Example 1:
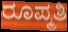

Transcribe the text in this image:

ರೂಪ್ಮತಿ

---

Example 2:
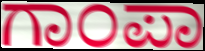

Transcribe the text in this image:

ಗಾಂಪಾ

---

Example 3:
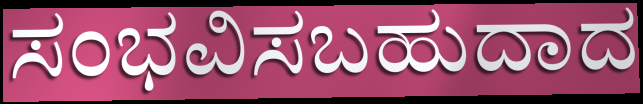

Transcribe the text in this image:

ಸಂಭವಿಸಬಹುದಾದ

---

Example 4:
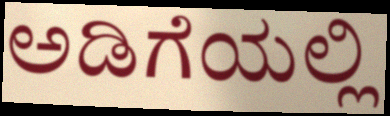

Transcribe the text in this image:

ಅಡಿಗೆಯಲ್ಲಿ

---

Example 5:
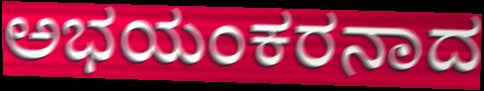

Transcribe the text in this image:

ಅಭಯಂಕರನಾದ